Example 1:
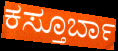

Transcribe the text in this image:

ಕಸ್ತೂರ್ಬಾ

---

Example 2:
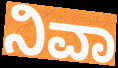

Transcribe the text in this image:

ನಿವಾ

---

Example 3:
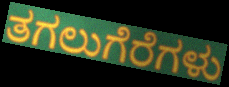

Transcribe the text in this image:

ತಗಲುಗೆರೆಗಳು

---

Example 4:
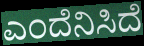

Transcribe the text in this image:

ಎಂದೆನಿಸಿದೆ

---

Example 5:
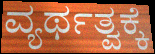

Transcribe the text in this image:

ವ್ಯರ್ಥತ್ವಕ್ಕೆ